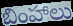
బింహాలు